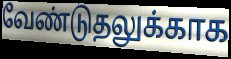
வேண்டுதலுக்காக